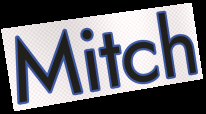
Mitch